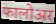
फालोअर